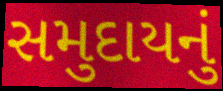
સમુદાયનું